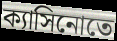
ক্যাসিনোতে